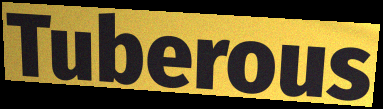
Tuberous